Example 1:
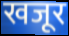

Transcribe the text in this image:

खजूर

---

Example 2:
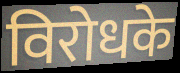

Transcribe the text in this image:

विरोधके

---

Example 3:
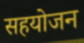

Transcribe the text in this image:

सहयोजन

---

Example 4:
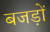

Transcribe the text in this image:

बजड़ों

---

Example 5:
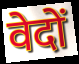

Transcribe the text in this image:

वेदों